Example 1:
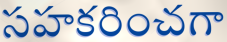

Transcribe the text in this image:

సహకరించగా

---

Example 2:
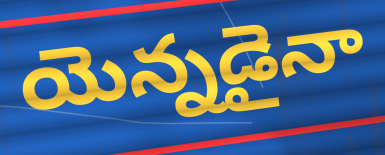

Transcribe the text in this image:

యెన్నడైనా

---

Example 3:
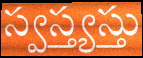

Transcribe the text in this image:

స్వస్త్యస్తు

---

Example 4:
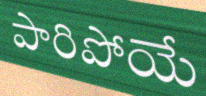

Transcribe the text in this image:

పారిపోయే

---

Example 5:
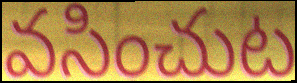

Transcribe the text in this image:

వసించుట